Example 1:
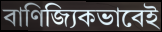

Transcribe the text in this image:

বাণিজ্যিকভাবেই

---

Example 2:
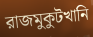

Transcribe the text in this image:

রাজমুকুটখানি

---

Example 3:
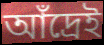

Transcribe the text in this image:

আঁদ্রেই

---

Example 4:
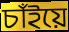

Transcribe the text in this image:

চাঁইয়ে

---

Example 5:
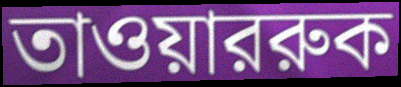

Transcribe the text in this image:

তাওয়াররুক